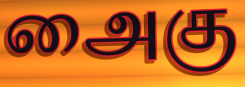
அைகு